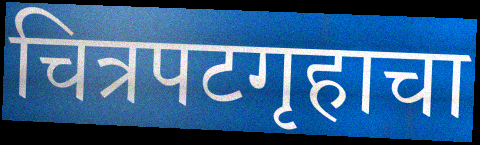
चित्रपटगृहाचा